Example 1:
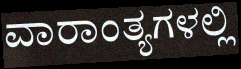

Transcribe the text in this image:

ವಾರಾಂತ್ಯಗಳಲ್ಲಿ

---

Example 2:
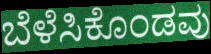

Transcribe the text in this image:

ಬೆಳೆಸಿಕೊಂಡವು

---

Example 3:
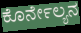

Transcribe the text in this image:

ಕೊರ್ನೇಲ್ಯನ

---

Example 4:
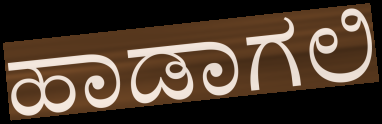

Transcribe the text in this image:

ಹಾಡಾಗಲಿ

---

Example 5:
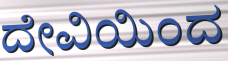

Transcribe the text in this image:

ದೇವಿಯಿಂದ